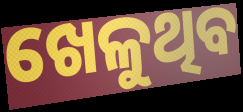
ଖେଳୁଥିବ